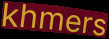
khmers